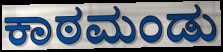
ಕಾಠಮಂಡು